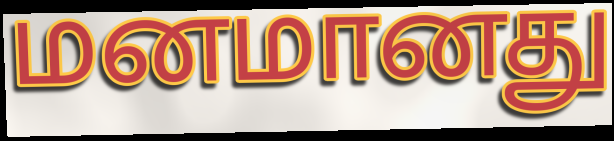
மனமானது